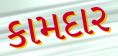
કામદાર